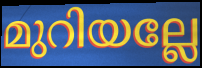
മുറിയല്ലേ